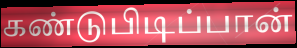
கண்டுபிடிப்பான்